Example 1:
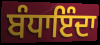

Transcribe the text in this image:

ਬੰਧਾਇੰਦਾ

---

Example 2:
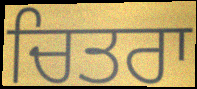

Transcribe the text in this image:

ਚਿਤਰਾ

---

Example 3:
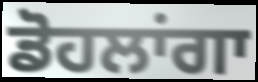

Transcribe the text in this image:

ਡੋਹਲਾਂਗਾ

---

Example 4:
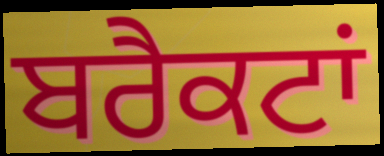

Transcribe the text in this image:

ਬਰੈਕਟਾਂ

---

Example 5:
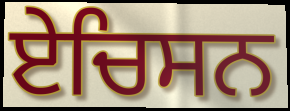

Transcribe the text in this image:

ਏਚਿਸਨ